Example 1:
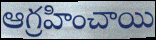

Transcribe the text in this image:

ఆగ్రహించాయి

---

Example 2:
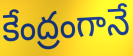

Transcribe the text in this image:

కేంద్రంగానే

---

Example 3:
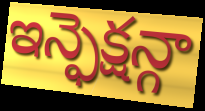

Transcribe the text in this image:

ఇన్ఫెక్షన్గా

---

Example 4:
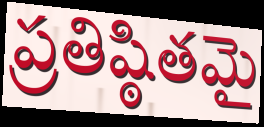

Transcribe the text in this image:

ప్రతిష్ఠితమై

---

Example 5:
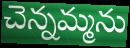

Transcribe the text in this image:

చెన్నమ్మను